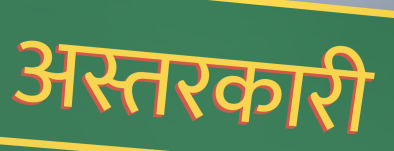
अस्तरकारी